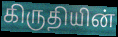
கிருதியின்